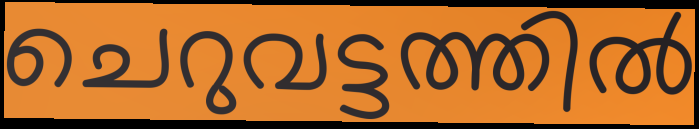
ചെറുവട്ടത്തിൽ